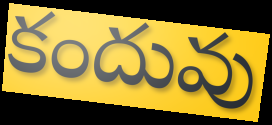
కందువు